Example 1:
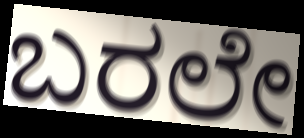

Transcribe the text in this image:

ಬರಲೇ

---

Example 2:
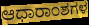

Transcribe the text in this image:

ಆಧಾರಾಂಶಗಳ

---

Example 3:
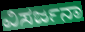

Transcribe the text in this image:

ವಿಸರ್ಜನಾ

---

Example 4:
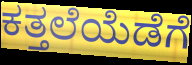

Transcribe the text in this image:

ಕತ್ತಲೆಯೆಡೆಗೆ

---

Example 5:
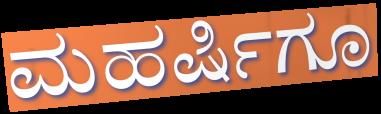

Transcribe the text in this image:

ಮಹರ್ಷಿಗೂ